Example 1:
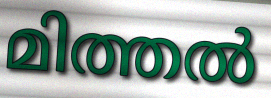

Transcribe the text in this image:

മിത്തൽ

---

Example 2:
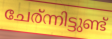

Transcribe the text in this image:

ചേര്ന്നിട്ടുണ്ട്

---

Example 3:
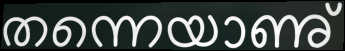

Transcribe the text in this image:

തന്നെയാണു്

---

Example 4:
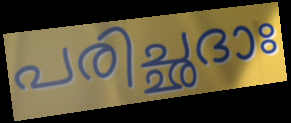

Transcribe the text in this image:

പരിച്ഛദാഃ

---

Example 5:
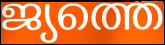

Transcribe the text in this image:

ജ്യത്തെ